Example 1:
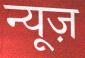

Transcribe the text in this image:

न्‍यूज़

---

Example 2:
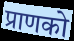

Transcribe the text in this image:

प्राणको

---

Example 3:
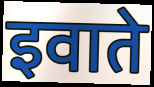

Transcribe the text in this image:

इवाते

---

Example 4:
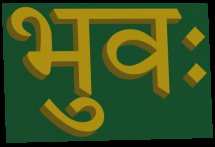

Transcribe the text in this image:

भुवः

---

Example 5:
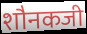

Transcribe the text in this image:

शौनकजी